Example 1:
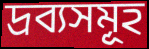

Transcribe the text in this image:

দ্ৰব্যসমূহ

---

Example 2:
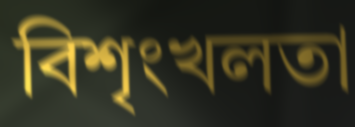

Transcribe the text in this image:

বিশৃংখলতা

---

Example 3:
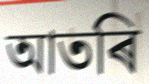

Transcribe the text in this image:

আতৰি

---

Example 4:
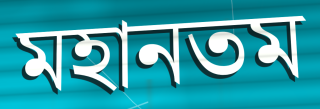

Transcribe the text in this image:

মহানতম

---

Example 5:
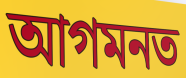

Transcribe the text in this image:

আগমনত